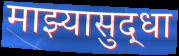
माझ्यासुद्धा